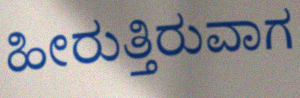
ಹೀರುತ್ತಿರುವಾಗ